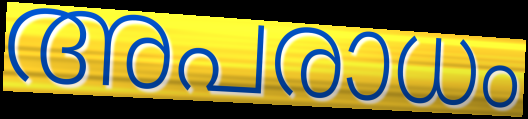
അപരാധം